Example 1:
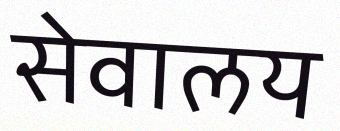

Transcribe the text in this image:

सेवालय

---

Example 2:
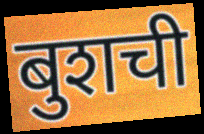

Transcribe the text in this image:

बुशची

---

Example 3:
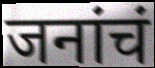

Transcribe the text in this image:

जनांचं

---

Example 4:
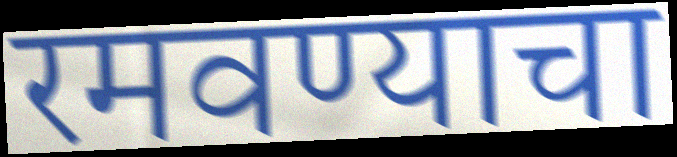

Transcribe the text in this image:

रमवण्याचा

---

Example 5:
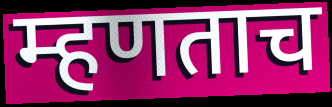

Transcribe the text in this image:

म्हणताच